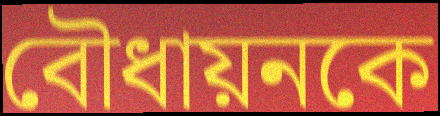
বৌধায়নকে